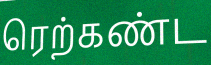
ரெற்கண்ட